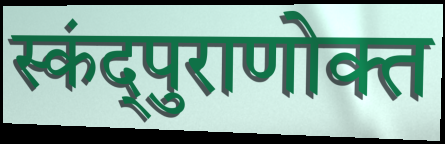
स्कंद्पुराणोक्त